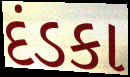
દંડકા